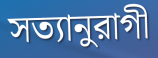
সত্যানুরাগী